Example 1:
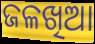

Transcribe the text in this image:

ଜଳଖିଆ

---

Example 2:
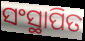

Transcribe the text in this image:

ସଂସ୍ଥାପିତ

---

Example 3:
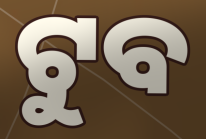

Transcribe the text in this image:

ଟୁବ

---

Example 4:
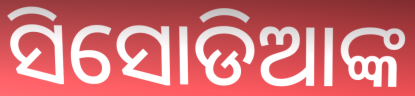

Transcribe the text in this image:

ସିସୋଡିଆଙ୍କ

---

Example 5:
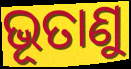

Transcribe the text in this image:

ଭୂତାଣୁ